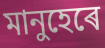
মানুহেৰে